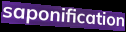
saponification